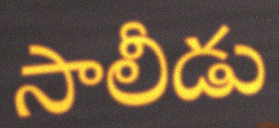
సాలీడు